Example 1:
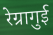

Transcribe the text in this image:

रेग्रागुई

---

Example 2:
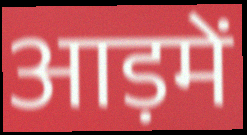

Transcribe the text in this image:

आड़में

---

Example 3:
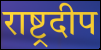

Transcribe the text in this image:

राष्ट्रदीप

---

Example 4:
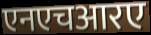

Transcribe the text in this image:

एनएचआरए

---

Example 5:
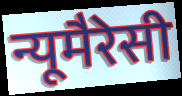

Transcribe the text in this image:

न्यूमैरेसी